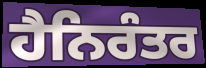
ਹੈਨਿਰੰਤਰ